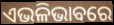
ଏଭଳିଭାବରେ